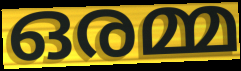
ഒരമ്മ